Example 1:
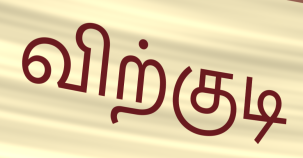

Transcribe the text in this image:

விற்குடி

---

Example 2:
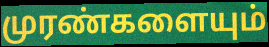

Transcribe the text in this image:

முரண்களையும்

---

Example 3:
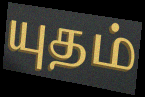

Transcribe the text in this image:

யுதம்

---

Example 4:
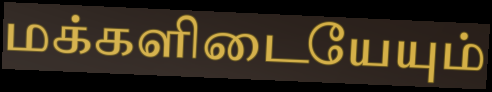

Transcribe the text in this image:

மக்களிடையேயும்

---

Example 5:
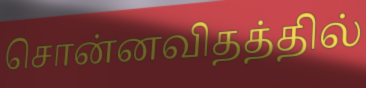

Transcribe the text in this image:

சொன்னவிதத்தில்